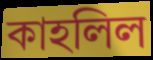
কাহলিল